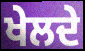
ਖੇਲਦੇ